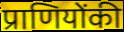
प्राणियोंकी